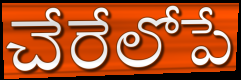
చేరేలోపే